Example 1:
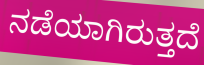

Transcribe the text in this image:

ನಡೆಯಾಗಿರುತ್ತದೆ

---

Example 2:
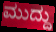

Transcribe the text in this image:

ಮುದ್ದು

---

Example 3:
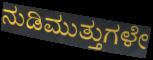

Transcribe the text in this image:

ನುಡಿಮುತ್ತುಗಳೇ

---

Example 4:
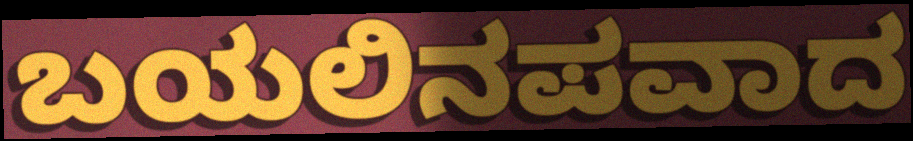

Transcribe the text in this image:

ಬಯಲಿನಪವಾದ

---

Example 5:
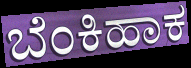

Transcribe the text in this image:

ಬೆಂಕಿಹಾಕ